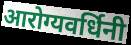
आरोग्यवर्धिनी